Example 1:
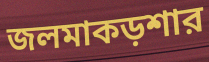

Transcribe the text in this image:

জলমাকড়শার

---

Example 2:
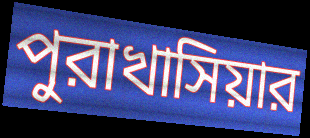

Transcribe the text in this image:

পুরাখাসিয়ার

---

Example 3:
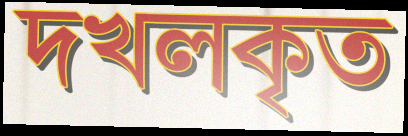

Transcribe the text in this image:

দখলকৃত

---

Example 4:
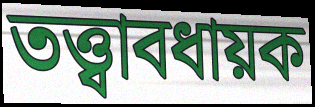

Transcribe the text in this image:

তত্ত্বাবধায়ক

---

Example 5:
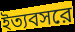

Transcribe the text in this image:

ইত্যবসরে